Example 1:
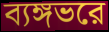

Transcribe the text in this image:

ব্যঙ্গভরে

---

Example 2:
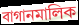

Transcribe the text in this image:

বাগানমালিক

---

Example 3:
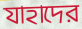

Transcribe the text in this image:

যাহাদের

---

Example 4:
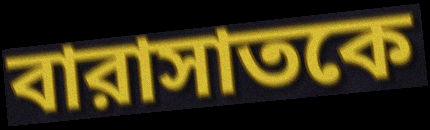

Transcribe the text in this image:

বারাসাতকে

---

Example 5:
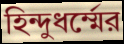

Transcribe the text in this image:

হিন্দুধর্ম্মের